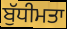
ਬੁੱਧੀਮਤਾ